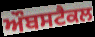
ਔਬਸਟੈਕਲ